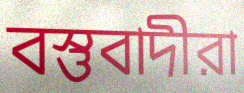
বস্তুবাদীরা